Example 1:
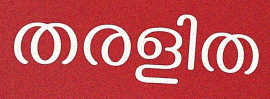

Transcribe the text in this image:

തരളിത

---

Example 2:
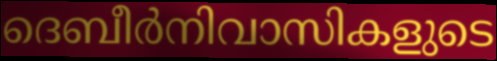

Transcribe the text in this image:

ദെബീർനിവാസികളുടെ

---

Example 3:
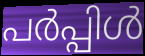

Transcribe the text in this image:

പർപ്പിൾ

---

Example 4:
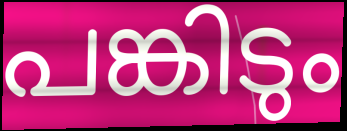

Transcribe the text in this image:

പങ്കിടും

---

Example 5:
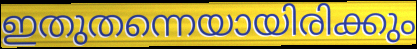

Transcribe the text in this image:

ഇതുതന്നെയായിരിക്കും